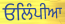
ਓਲਿੰਪੀਆ